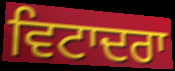
ਵਿਟਾਦਰਾ